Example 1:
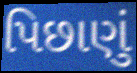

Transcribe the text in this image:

પિછાણું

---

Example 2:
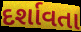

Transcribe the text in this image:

દર્શાવતા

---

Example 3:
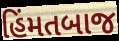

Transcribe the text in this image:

હિંમતબાજ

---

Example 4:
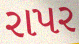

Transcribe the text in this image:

રાપર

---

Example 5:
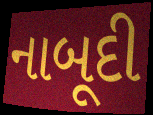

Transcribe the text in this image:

નાબૂદી